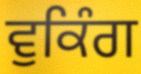
ਵੁਕਿੰਗ